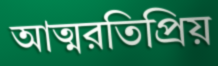
আত্মরতিপ্রিয়